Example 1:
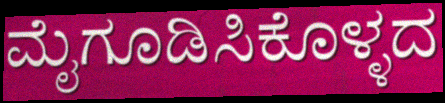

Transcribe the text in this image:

ಮೈಗೂಡಿಸಿಕೊಳ್ಳದ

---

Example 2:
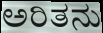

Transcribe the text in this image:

ಅರಿತನು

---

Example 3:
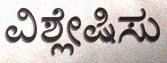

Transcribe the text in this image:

ವಿಶ್ಲೇಷಿಸು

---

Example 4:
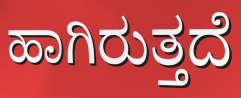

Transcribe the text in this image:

ಹಾಗಿರುತ್ತದೆ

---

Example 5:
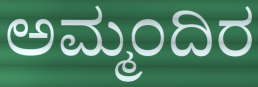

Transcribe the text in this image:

ಅಮ್ಮಂದಿರ